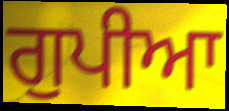
ਗੁਪੀਆ